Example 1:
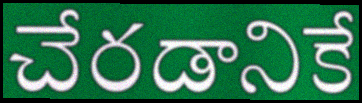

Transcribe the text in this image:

చేరడానికే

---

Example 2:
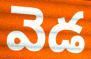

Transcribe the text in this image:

వెడ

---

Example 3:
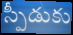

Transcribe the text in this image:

స్పీడుకు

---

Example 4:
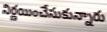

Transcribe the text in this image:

నిర్ణయించేసుకున్నారు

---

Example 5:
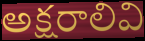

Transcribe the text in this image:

అక్షరాలివి